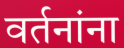
वर्तनांना